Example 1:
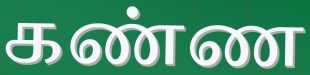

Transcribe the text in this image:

கண்ண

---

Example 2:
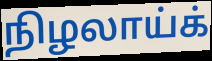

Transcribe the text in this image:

நிழலாய்க்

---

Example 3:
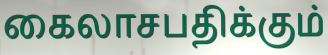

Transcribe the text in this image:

கைலாசபதிக்கும்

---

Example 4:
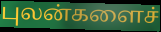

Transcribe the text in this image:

புலன்களைச்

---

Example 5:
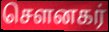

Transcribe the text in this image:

சௌனகர்